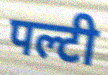
पल्टी